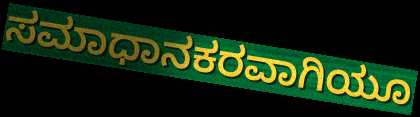
ಸಮಾಧಾನಕರವಾಗಿಯೂ